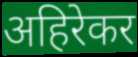
अहिरेकर